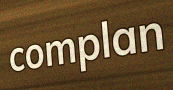
complan